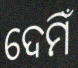
ଦେମିଁ